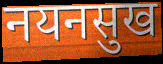
नयनसुख